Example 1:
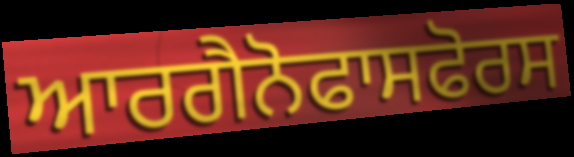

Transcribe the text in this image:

ਆਰਗੈਨੋਫਾਸਫੋਰਸ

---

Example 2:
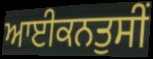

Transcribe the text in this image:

ਆਈਕਨਤੁਸੀਂ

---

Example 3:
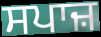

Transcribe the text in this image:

ਸਪਾਜ਼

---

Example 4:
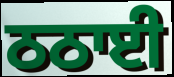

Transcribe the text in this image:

ਠਠਾਈ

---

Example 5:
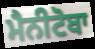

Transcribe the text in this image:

ਮੈਨੀਟੋਬਾ